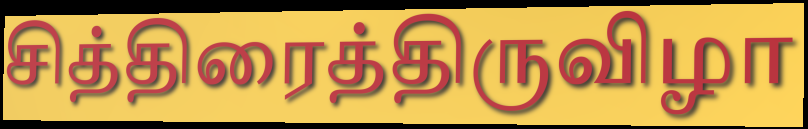
சித்திரைத்திருவிழா